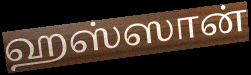
ஹஸ்ஸான்